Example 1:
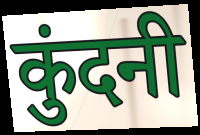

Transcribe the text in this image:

कुंदनी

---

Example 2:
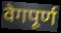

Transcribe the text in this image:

वेगपूर्ण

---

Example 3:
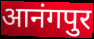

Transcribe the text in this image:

आनंगपुर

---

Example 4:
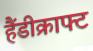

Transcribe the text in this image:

हैंडीक्राफ्ट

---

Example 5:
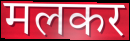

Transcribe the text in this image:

मलकर